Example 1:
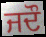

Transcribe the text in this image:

ਜਦੌ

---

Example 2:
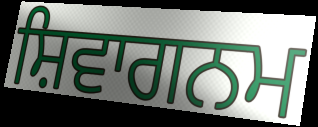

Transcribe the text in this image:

ਸ਼ਿਵਾਗਨਮ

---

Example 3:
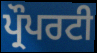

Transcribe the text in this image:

ਪ੍ਰੌਪਰਟੀ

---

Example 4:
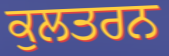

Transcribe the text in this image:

ਕੁਲਤਰਨ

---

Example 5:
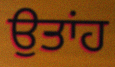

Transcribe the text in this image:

ਉਤਾਂਹ